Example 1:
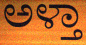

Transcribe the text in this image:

ಅಳ್ತಾ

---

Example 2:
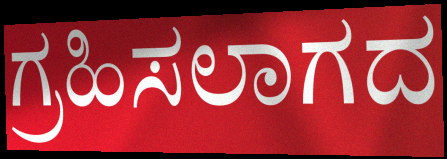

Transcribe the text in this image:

ಗ್ರಹಿಸಲಾಗದ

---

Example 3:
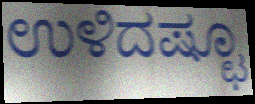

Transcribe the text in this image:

ಉಳಿದಷ್ಟೂ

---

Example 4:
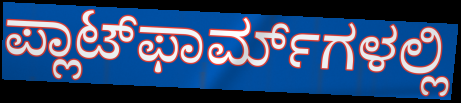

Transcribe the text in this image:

ಪ್ಲಾಟ್‌ಫಾರ್ಮ್‌ಗಳಲ್ಲಿ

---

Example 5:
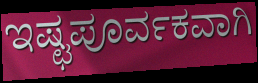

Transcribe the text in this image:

ಇಷ್ಟಪೂರ್ವಕವಾಗಿ